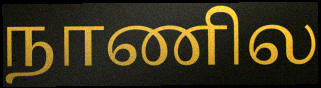
நாணில